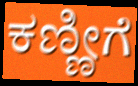
ಕಣ್ಣೀಗೆ